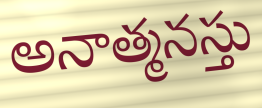
అనాత్మనస్తు